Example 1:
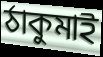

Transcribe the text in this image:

ঠাকুমাই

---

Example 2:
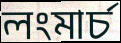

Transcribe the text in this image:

লংমার্চ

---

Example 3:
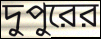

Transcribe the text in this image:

দুপুরের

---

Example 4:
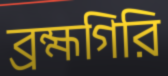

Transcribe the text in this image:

ব্রহ্মগিরি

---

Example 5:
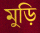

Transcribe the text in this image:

মুড়ি